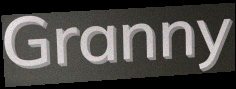
Granny